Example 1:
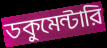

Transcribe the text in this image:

ডকুমেন্টারি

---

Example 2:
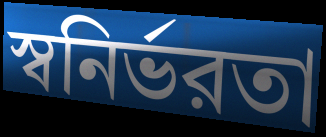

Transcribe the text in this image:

স্বনির্ভরতা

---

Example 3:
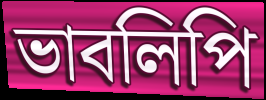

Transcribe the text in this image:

ভাবলিপি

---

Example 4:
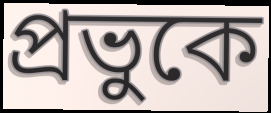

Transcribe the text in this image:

প্রভুকে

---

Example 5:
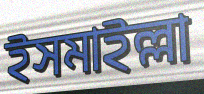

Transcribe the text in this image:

ইসমাইল্লা